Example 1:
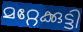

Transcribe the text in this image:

മറ്റേക്കുട്ടി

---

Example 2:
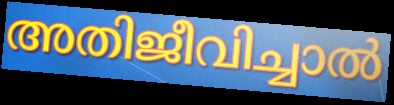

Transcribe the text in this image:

അതിജീവിച്ചാൽ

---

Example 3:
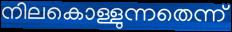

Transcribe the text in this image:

നിലകൊള്ളുന്നതെന്ന്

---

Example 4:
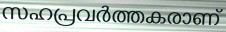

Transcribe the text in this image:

സഹപ്രവർത്തകരാണ്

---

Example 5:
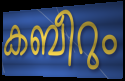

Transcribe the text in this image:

കബീറും